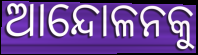
ଆନ୍ଦୋଳନକୁ